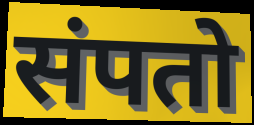
संपतो